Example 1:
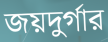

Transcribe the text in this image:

জয়দুর্গার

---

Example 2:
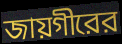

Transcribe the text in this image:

জায়গীরের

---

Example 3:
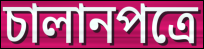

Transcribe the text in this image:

চালানপত্রে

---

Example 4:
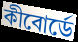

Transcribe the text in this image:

কীবোর্ডে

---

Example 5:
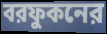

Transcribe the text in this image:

বরফুকনের